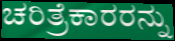
ಚರಿತ್ರೆಕಾರರನ್ನು